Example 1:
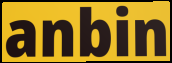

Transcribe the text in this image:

anbin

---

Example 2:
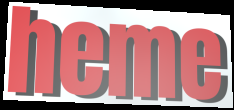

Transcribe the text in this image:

heme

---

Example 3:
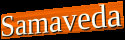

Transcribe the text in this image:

Samaveda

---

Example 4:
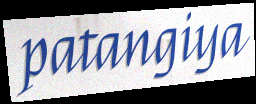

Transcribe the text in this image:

patangiya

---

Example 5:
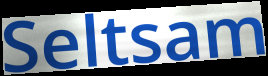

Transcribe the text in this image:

Seltsam